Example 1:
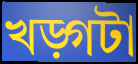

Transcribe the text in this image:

খড়্গটা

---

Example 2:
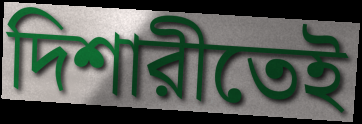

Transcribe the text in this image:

দিশারীতেই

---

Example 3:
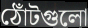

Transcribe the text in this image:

ঠোঁটগুলো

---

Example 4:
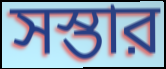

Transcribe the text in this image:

সস্তার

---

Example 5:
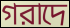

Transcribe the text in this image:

গরাদে